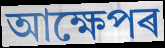
আক্ষেপৰ